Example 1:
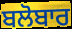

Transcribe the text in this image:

ਬਲੋਬਾਰ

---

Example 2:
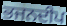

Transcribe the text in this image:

ਭਜਨਦੀਪ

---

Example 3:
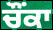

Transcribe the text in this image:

ਚੌੰਕਾ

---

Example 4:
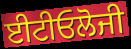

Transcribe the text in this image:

ਈਟੀਓਲੋਜੀ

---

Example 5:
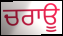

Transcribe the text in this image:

ਚਰਾਊ